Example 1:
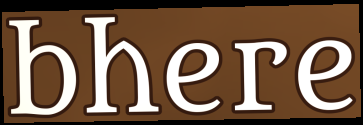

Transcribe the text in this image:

bhere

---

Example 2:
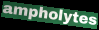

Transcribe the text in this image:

ampholytes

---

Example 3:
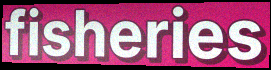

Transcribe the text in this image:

fisheries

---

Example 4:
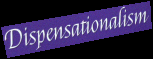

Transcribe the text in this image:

Dispensationalism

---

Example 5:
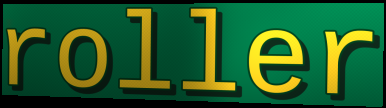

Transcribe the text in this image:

roller